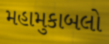
મહામુકાબલો